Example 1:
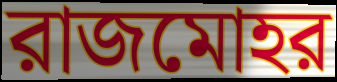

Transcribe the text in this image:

রাজমোহর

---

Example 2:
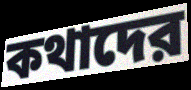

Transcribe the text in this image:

কথাদের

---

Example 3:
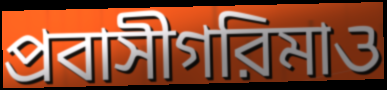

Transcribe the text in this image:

প্রবাসীগরিমাও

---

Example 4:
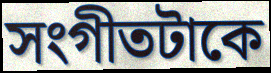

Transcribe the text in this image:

সংগীতটাকে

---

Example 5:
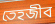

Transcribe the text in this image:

তেহজীব